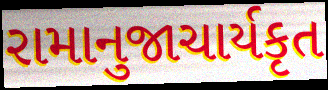
રામાનુજાચાર્યકૃત